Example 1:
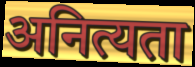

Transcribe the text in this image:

अनित्यता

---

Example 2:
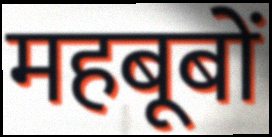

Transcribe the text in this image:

महबूबों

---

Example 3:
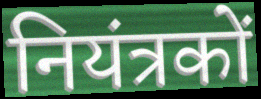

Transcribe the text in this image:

नियंत्रकों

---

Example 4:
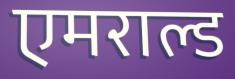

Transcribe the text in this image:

एमराल्‍ड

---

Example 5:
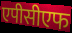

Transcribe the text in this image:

एपीसीएफ